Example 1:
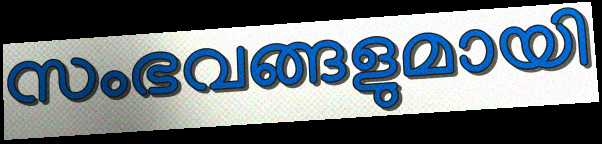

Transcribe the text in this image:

സംഭവങ്ങളുമായി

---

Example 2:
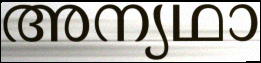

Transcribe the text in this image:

അന്യഥാ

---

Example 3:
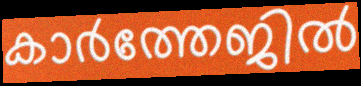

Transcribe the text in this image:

കാർത്തേജിൽ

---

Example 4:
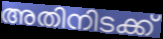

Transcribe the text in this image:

അതിനിടക്ക്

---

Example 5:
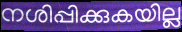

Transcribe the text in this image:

നശിപ്പിക്കുകയില്ല